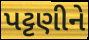
પટ્ટણીને